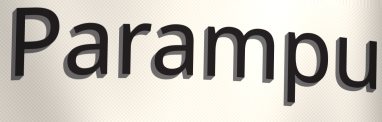
Parampu